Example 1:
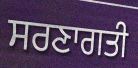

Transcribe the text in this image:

ਸਰਣਾਗਤੀ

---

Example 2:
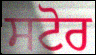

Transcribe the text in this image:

ਸਟੋਰ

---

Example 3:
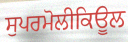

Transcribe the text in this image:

ਸੁਪਰਮੋਲੀਕਿਊਲ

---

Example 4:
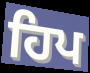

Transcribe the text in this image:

ਹਿਪ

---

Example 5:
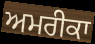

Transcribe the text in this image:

ਅਮਰੀਕਾ